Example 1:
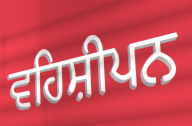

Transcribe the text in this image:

ਵਹਿਸ਼ੀਪਨ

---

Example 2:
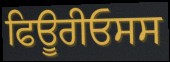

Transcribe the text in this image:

ਫਿਊਰੀਓਸਸ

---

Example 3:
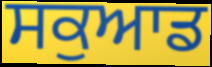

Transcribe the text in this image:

ਸਕੁਆਡ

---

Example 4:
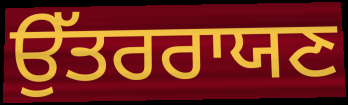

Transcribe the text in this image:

ਉੱਤਰਰਾਯਣ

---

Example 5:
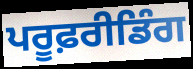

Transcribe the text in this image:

ਪਰੂਫ਼ਰੀਡਿੰਗ